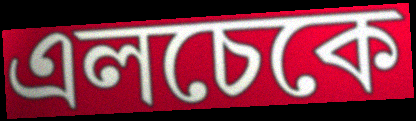
এলচেকে